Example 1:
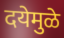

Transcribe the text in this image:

दयेमुळे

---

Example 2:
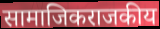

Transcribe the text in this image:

सामाजिकराजकीय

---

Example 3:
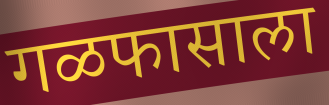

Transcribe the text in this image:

गळफासाला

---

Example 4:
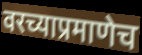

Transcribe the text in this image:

वरच्याप्रमाणेच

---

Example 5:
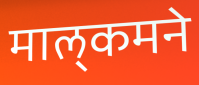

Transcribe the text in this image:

माल्कमने